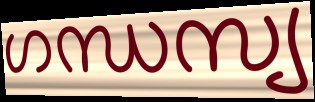
ഗന്ധസ്യ